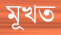
মূখত